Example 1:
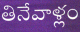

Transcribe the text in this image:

తినేవాళ్లం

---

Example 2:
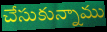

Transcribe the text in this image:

చేసుకున్నాము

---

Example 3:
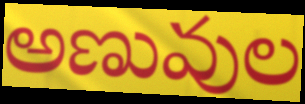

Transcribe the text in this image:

అణువుల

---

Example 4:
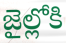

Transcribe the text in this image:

జైల్లోకి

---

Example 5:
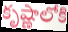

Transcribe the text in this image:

కృష్ణాలోకి